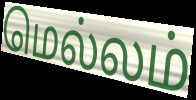
மெல்லம்